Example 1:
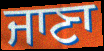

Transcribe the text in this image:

ਜਾਣਾ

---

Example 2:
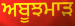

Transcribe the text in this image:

ਅਬੂਝਮਾੜ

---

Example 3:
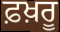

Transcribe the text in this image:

ਫ਼ਖ਼ਰੂ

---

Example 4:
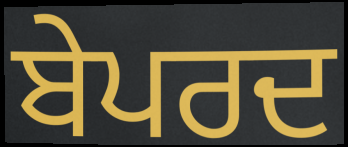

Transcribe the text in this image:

ਬੇਪਰਦ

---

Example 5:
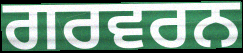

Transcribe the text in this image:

ਗਰਵਰਨ